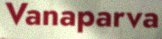
Vanaparva